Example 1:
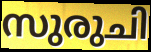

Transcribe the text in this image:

സുരുചി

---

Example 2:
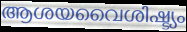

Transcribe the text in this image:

ആശയവൈശിഷ്ട്യം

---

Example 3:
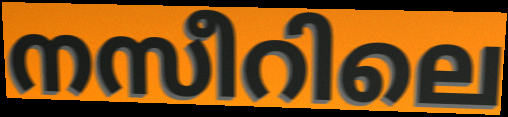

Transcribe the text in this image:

നസീറിലെ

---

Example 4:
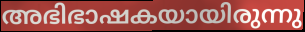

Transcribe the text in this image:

അഭിഭാഷകയായിരുന്നു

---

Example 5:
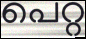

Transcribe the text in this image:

പെറ്റ